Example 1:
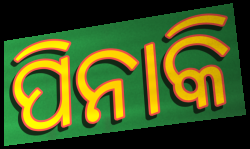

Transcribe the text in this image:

ପିନାକି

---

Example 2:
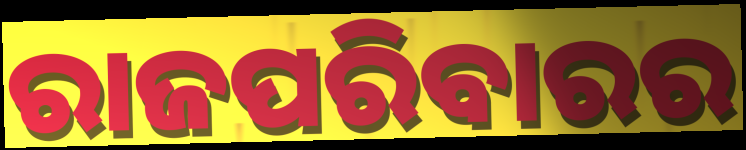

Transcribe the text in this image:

ରାଜପରିବାରର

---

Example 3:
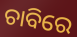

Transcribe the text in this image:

ଚାବିରେ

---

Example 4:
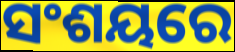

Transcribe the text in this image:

ସଂଶୟରେ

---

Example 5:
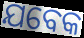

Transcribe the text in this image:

ଯବେକ